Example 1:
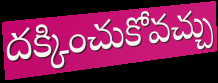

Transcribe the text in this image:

దక్కించుకోవచ్చు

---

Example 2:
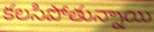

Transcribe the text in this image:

కలసిపోతున్నాయి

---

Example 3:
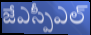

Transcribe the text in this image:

జేఎస్పీఎల్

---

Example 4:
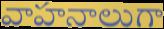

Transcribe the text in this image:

వాహనాలుగా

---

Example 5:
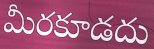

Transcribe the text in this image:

మీరకూడదు